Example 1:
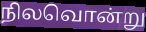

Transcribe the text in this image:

நிலவொன்று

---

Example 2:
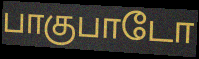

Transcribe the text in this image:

பாகுபாடோ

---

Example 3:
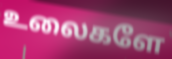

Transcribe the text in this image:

உலைகளே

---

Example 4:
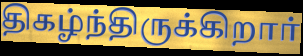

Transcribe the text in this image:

திகழ்ந்திருக்கிறார்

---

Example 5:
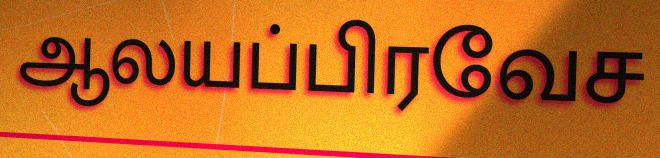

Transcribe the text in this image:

ஆலயப்பிரவேச